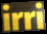
irri